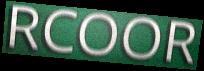
RCOOR